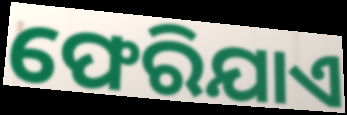
ଫେରିଯାଏ